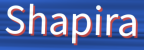
Shapira